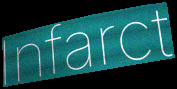
Infarct